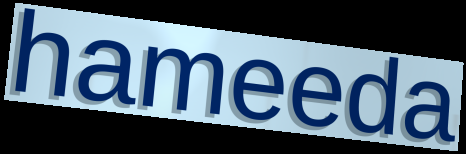
hameeda